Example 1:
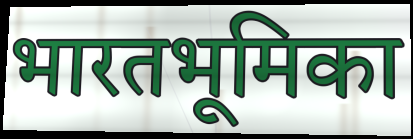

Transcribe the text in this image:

भारतभूमिका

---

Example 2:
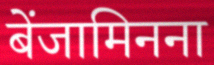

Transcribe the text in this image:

बेंजामिनना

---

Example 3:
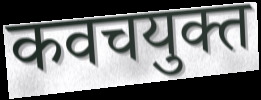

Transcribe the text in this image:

कवचयुक्त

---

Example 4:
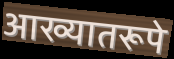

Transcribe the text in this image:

आख्यातरूपे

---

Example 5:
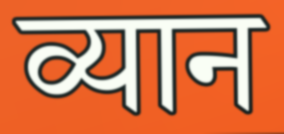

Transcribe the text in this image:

व्यान